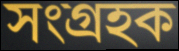
সংগ্ৰহক